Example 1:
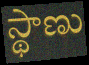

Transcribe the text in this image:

స్థాణు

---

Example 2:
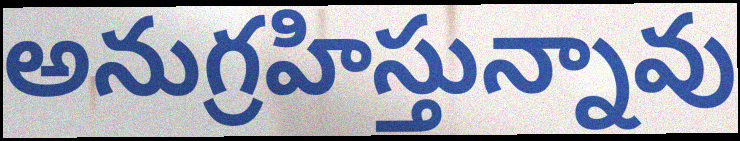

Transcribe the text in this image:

అనుగ్రహిస్తున్నావు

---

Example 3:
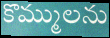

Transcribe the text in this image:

కొమ్ములను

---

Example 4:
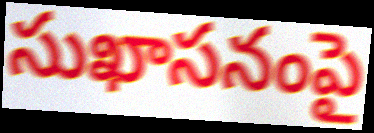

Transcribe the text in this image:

సుఖాసనంపై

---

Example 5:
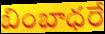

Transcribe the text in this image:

బింబాధరే